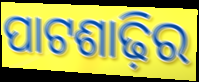
ପାଟଶାଢ଼ିର